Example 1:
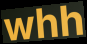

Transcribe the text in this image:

whh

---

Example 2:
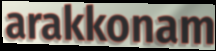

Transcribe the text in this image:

arakkonam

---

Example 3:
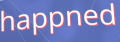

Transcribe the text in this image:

happned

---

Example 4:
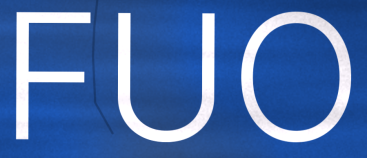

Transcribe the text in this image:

FUO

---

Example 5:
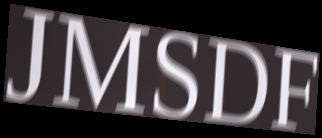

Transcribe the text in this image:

JMSDF